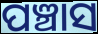
ପଞ୍ଚାସ